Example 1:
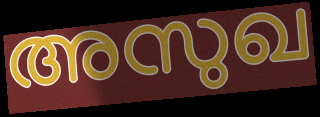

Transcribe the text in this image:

അസുഖ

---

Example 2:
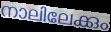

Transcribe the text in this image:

നാലിലേക്കും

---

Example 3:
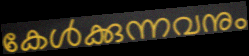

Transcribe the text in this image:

കേൾക്കുന്നവനും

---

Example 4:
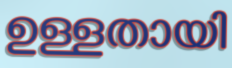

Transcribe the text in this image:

ഉള്ളതായി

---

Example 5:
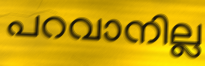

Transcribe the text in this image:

പറവാനില്ല